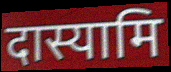
दास्यामि